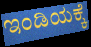
ಇಂಡಿಯಕ್ಕೆ